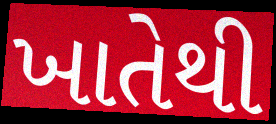
ખાતેથી